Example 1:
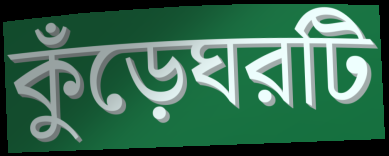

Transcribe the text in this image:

কুঁড়েঘরটি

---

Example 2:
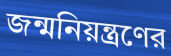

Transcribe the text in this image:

জন্মনিয়ন্ত্রণের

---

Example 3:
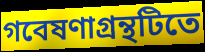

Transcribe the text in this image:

গবেষণাগ্রন্থটিতে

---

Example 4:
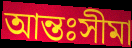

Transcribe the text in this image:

আন্তঃসীমা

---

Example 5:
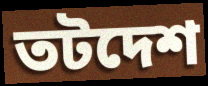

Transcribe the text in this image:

তটদেশ